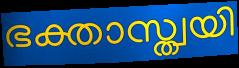
ഭക്താസ്ത്വയി